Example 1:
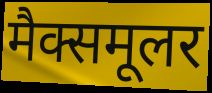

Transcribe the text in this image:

मैक्समूलर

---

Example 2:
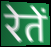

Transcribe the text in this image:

रेतें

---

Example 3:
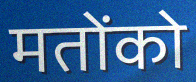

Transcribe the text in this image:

मतोंको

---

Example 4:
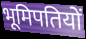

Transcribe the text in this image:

भूमिपतियों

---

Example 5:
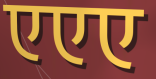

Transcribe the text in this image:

एएए